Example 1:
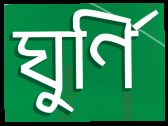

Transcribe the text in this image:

ঘুর্ণি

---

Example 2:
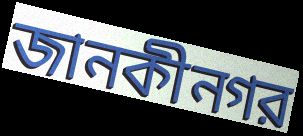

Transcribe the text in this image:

জানকীনগর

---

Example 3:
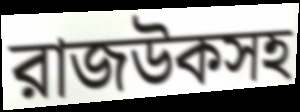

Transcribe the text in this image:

রাজউকসহ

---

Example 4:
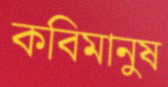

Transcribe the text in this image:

কবিমানুষ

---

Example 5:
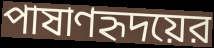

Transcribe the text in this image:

পাষাণহৃদয়ের